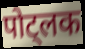
पोट्लक